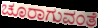
ಚೂರಾಗುವಂತೆ